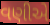
વણીએ